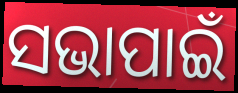
ସଭାପାଇଁ